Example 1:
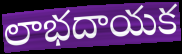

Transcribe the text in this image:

లాభదాయక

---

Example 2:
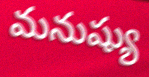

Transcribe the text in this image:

మనుష్యు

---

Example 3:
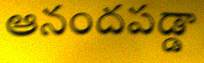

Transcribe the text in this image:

ఆనందపడ్డా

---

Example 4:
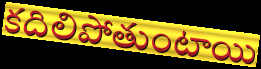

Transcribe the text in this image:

కదిలిపోతుంటాయి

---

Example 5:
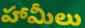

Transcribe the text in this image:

హామీలు